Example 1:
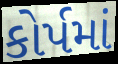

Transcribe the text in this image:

કોર્પમાં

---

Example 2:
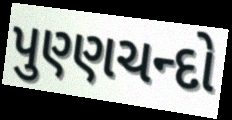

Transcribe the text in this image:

પુણ્ણચન્દો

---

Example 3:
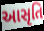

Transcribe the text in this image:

આસૃતિ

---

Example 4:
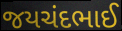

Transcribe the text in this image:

જયચંદભાઈ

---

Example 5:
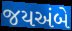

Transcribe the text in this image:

જયઅંબે